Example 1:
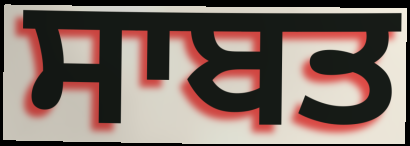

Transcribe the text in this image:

ਸਾਬਤ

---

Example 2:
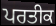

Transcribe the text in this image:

ਪਰਤੀਕ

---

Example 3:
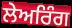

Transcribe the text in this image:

ਲੇਅਰਿੰਗ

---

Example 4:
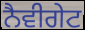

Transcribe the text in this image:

ਨੈਵੀਗੇਟ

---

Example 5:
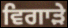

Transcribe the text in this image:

ਵਿਗਾੜੇ